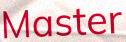
Master